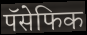
पॅसेफिक